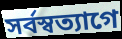
সর্বস্বত্যাগে